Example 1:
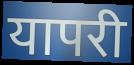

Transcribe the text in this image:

यापरी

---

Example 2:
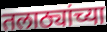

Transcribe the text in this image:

तलाठ्यांच्या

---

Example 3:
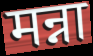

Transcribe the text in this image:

मन्ना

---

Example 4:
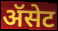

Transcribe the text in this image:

ॲसेट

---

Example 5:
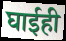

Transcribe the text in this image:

घाईही